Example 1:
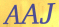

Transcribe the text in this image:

AAJ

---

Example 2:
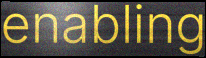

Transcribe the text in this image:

enabling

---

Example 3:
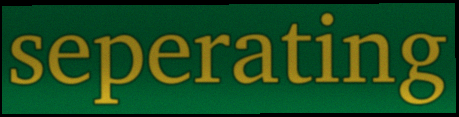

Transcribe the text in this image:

seperating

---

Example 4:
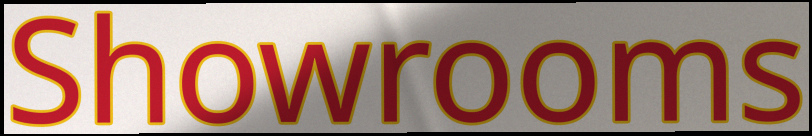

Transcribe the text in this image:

Showrooms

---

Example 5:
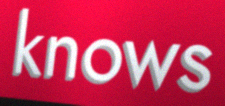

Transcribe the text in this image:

knows